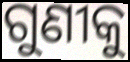
ଗୁଣୀକୁ